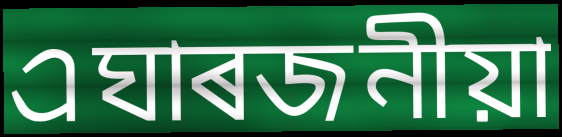
এঘাৰজনীয়া